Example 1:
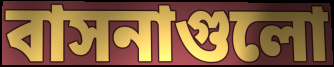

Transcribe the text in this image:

বাসনাগুলো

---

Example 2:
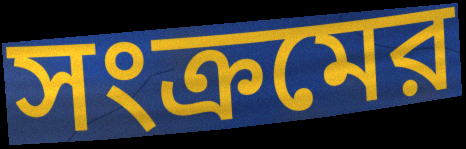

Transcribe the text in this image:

সংক্রমের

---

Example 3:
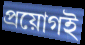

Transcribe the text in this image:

প্রয়োগই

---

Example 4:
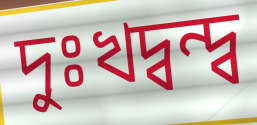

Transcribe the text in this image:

দুঃখদ্বন্দ্ব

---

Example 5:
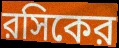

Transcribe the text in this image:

রসিকের